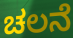
ಚಲನೆ